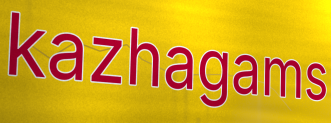
kazhagams